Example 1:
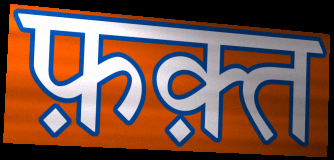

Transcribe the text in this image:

फ़क़्त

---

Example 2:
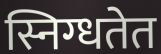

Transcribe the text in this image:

स्निग्धतेत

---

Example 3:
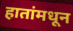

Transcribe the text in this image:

हातांमधून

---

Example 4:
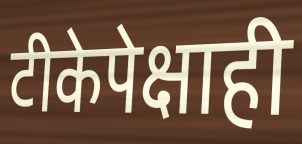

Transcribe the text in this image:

टीकेपेक्षाही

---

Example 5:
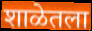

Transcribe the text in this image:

शाळेतला